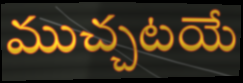
ముచ్చటయే